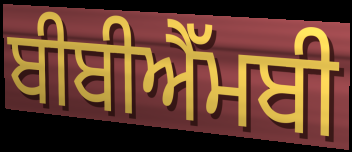
ਬੀਬੀਐੱਮਬੀ